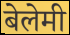
बेलेमी